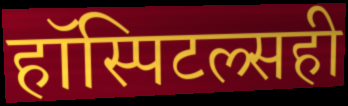
हॉस्पिटल्सही